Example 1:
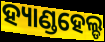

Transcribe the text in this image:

ହ୍ୟାଣ୍ଡହେଲ୍ଡ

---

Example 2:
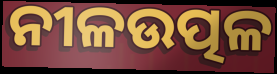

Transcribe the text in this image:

ନୀଳଉତ୍ପଳ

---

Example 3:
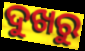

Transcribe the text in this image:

ଦୁଖରୁ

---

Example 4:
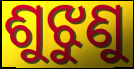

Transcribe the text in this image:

ଶୁଝୁଣୁ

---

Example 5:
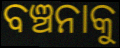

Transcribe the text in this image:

ବଞ୍ଚନାକୁ